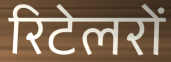
रिटेलरों